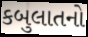
કબુલાતનો